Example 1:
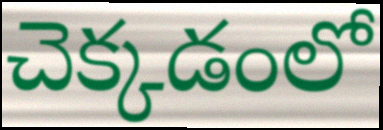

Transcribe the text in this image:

చెక్కడంలో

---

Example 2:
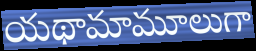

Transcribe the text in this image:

యథామామూలుగా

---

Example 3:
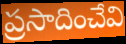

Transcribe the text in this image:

ప్రసాదించేవి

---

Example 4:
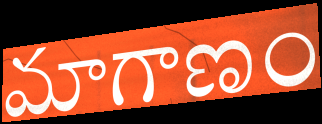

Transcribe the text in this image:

మాగాణం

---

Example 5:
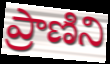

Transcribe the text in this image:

ప్రాణిని